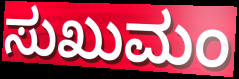
ಸುಖುಮಂ